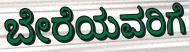
ಬೇರೆಯವರಿಗೆ